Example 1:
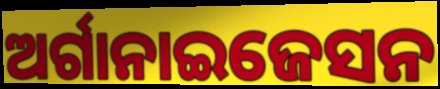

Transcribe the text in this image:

ଅର୍ଗାନାଇଜେସନ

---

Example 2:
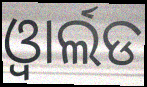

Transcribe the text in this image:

ଓ୍ବାର୍ଲଡ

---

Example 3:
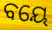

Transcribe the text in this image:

ବୟେ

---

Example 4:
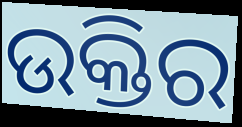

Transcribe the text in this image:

ଉକ୍ତିର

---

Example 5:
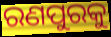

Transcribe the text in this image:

ରଣପୁରକୁ